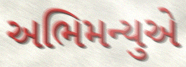
અભિમન્યુએ